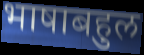
भाषाबहुल